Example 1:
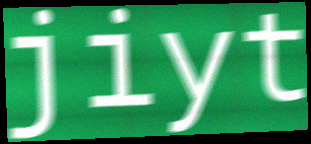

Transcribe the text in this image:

jiyt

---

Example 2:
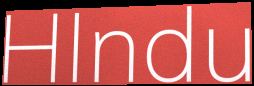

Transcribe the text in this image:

HIndu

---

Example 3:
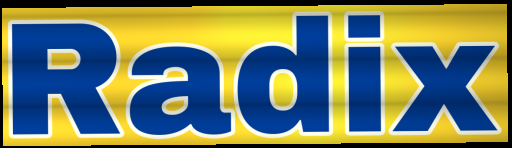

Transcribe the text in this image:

Radix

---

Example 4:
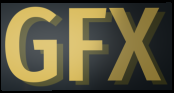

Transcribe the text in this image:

GFX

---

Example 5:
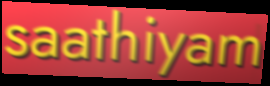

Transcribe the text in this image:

saathiyam